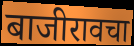
बाजीरावचा